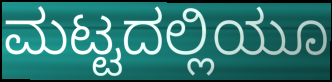
ಮಟ್ಟದಲ್ಲಿಯೂ